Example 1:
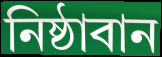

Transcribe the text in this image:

নিষ্ঠাবান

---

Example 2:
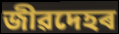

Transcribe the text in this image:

জীৱদেহৰ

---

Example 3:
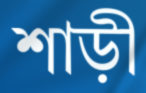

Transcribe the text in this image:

শাড়ী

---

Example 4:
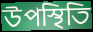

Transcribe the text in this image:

উপস্থিতি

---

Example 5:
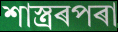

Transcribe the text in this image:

শাস্ত্ৰৰপৰা